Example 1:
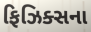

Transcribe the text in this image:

ફિઝિક્સના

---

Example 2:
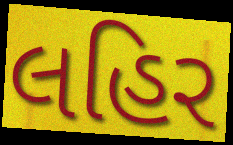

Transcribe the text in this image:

લહિર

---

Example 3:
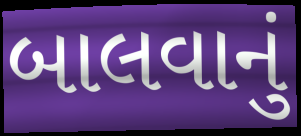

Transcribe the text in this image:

બાલવાનું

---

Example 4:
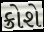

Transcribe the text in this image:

ક્રોશે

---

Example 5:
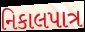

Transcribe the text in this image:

નિકાલપાત્ર